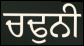
ਚਢੁਨੀ